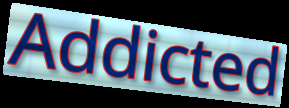
Addicted